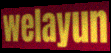
welayun